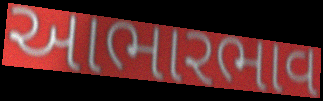
આભારભાવ